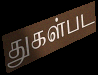
துகள்பட